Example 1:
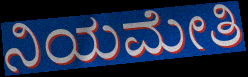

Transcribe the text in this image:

ನಿಯಮೇತಿ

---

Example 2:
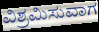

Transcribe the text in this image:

ವಿಶ್ರಮಿಸುವಾಗ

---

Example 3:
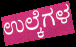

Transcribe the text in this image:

ಉಲ್ಕೆಗಳ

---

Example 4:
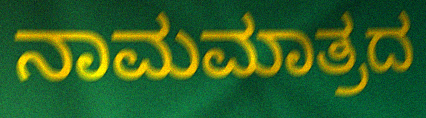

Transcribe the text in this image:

ನಾಮಮಾತ್ರದ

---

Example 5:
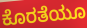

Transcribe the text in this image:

ಕೊರತೆಯೂ